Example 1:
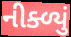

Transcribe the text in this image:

નીક્ળ્યું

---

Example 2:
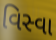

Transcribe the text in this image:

વિસ્વા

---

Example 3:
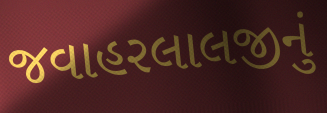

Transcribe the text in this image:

જવાહરલાલજીનું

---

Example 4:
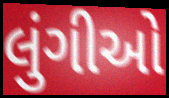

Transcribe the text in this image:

લુંગીઓ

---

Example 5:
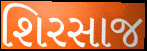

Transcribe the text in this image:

શિરસાજ